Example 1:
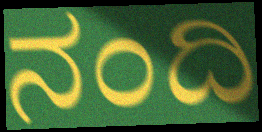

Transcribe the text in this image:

ನಂದಿ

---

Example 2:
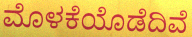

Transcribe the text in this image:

ಮೊಳಕೆಯೊಡೆದಿವೆ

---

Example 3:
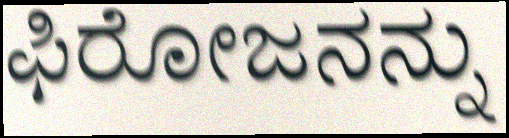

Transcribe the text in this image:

ಫಿರೋಜನನ್ನು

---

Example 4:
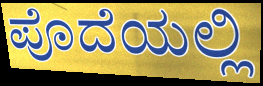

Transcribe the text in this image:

ಪೊದೆಯಲ್ಲಿ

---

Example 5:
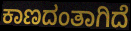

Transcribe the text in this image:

ಕಾಣದಂತಾಗಿದೆ